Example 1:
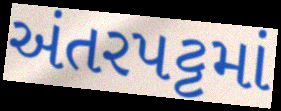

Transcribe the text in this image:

અંતરપટ્ટમાં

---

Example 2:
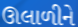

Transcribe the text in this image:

ઊલાળીને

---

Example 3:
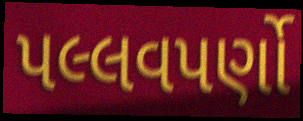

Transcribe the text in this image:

પલ્લવપર્ણો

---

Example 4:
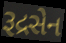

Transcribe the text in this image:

રૂદ્રસેન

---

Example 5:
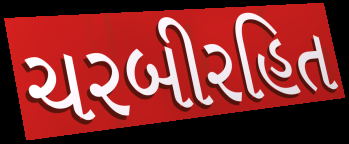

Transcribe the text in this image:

ચરબીરહિત